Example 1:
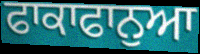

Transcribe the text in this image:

ਫਾਕਾਫਾਨੁਆ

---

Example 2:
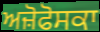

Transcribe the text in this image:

ਅਜ਼ੋਫੋਸਕਾ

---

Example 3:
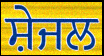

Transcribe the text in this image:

ਸ਼ੇਜਲ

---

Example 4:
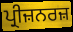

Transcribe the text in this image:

ਪ੍ਰੀਜ਼ਨਰਜ਼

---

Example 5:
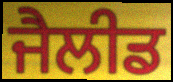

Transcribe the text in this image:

ਜੈਲੀਡ